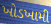
ખોડખામી